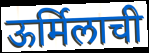
ऊर्मिलाची